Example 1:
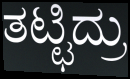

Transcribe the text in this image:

ತಟ್ಟಿದ್ರು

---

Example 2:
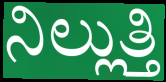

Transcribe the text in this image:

ನಿಲ್ಲುತ್ತಿ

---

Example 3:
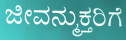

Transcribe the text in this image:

ಜೀವನ್ಮುಕ್ತರಿಗೆ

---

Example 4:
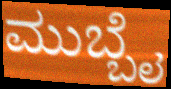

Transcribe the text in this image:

ಮುಬ್ಬೈ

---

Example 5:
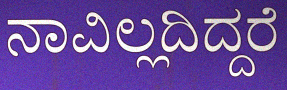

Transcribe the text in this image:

ನಾವಿಲ್ಲದಿದ್ದರೆ